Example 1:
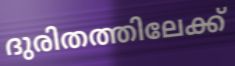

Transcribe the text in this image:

ദുരിതത്തിലേക്ക്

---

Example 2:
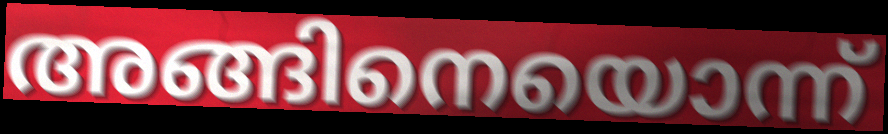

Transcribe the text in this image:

അങ്ങിനെയൊന്ന്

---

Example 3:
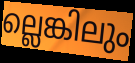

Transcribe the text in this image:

ല്ലെങ്കിലും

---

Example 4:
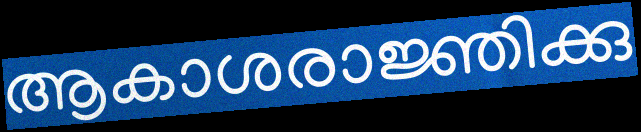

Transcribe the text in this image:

ആകാശരാജ്ഞിക്കു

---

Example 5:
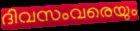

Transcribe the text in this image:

ദിവസംവരെയും